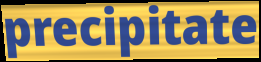
precipitate